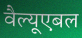
वैल्यूएबल